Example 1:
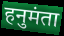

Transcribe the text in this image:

हनुमंता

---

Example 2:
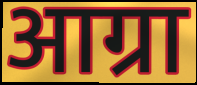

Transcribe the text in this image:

आग्रा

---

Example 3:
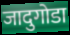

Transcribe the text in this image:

जादुगोडा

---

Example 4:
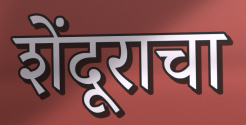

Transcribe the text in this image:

शेंदूराचा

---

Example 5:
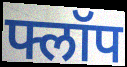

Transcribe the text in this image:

फ्लॉप